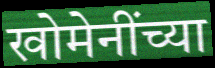
खोमेनींच्या